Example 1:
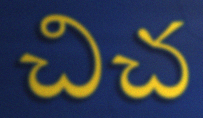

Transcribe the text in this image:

చిచ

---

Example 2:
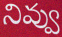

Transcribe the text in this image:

నివ్వు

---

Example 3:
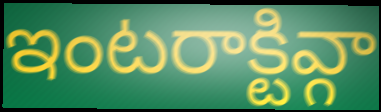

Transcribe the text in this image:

ఇంటరాక్టివ్గా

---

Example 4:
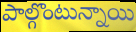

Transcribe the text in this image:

పాల్గొంటున్నాయి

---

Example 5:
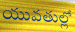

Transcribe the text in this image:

యువతుల్లో